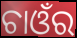
ଚାଓଁର